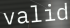
valid